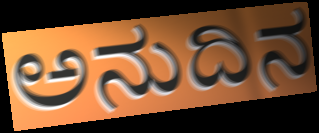
ಅನುದಿನ